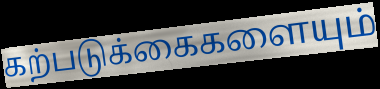
கற்படுக்கைகளையும்